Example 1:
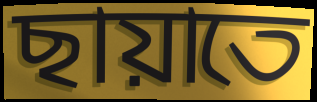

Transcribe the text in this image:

ছায়াতে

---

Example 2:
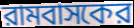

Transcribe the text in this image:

রামবাসকের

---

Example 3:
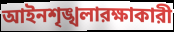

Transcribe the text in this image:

আইনশৃঙ্খলারক্ষাকারী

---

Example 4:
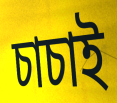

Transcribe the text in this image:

চাচাই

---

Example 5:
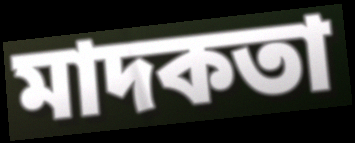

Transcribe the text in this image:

মাদকতা